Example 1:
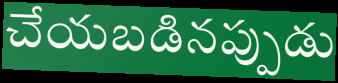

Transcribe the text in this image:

చేయబడినప్పుడు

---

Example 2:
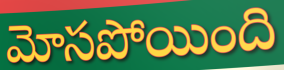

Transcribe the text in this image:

మోసపోయింది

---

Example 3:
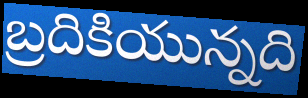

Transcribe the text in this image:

బ్రదికియున్నది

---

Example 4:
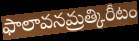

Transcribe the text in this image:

ఫాలావనమ్రత్కిరీటం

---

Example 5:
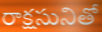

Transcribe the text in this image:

రాక్షసునితో